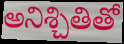
అనిశ్చితితో